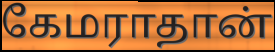
கேமராதான்